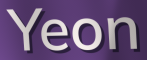
Yeon